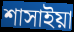
শাসাইয়া